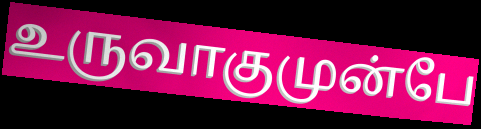
உருவாகுமுன்பே